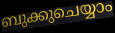
ബുക്കുചെയ്യാം